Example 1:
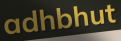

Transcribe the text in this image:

adhbhut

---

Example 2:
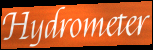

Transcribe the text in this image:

Hydrometer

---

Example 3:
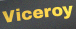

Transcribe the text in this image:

Viceroy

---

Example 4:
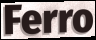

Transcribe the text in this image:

Ferro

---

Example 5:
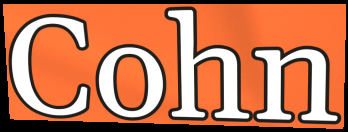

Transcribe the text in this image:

Cohn